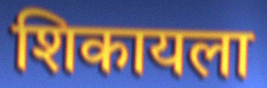
शिकायला